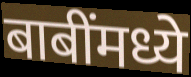
बाबींमध्ये